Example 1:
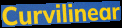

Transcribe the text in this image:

Curvilinear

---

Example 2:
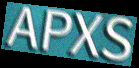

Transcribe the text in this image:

APXS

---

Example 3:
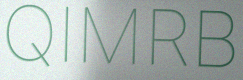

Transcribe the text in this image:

QIMRB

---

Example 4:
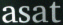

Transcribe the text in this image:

asat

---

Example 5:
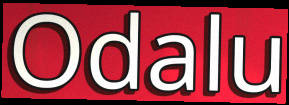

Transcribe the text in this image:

Odalu